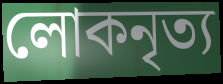
লোকনৃত্য